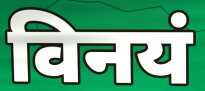
विनयं